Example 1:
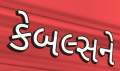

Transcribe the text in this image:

કેબલ્સને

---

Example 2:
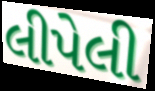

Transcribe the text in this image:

લીપેલી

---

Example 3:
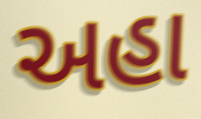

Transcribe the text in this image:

અહા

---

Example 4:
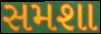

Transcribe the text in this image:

સમશા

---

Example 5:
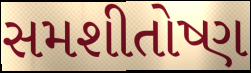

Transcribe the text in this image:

સમશીતોષ્ણ